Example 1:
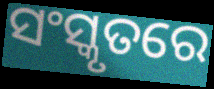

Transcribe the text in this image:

ସଂସ୍କୃତରେ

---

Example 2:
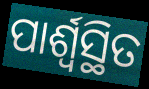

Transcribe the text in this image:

ପାର୍ଶ୍ୱସ୍ଥିତ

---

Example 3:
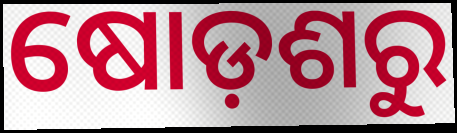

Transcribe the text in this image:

ଷୋଡ଼ଶରୁ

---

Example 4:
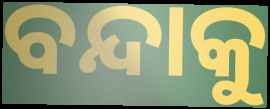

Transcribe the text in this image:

ବନ୍ଦାକୁ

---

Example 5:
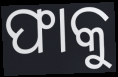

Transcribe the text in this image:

ଫାକୁ